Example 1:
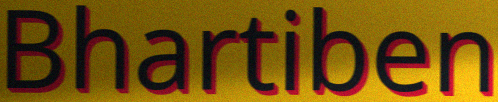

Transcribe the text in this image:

Bhartiben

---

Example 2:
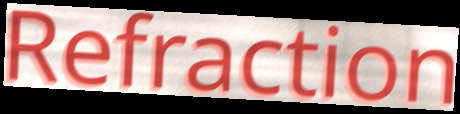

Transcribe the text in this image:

Refraction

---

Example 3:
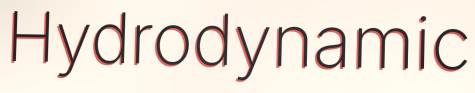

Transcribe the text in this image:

Hydrodynamic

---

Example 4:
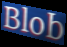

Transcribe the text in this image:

Blob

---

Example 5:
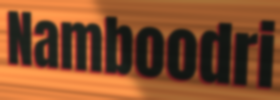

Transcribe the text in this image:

Namboodri